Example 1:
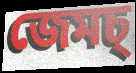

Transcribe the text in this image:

জেমচ্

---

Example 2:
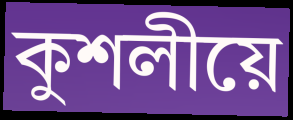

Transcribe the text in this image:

কুশলীয়ে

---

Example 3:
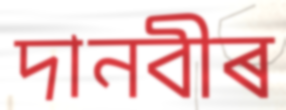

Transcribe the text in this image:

দানবীৰ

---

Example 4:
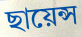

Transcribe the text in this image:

ছায়েন্স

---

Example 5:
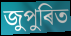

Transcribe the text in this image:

জুপুৰিত